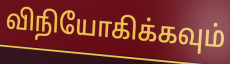
விநியோகிக்கவும்